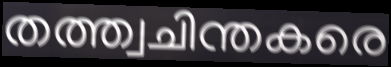
തത്ത്വചിന്തകരെ